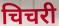
चिचरी